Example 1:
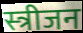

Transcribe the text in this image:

स्त्रीजन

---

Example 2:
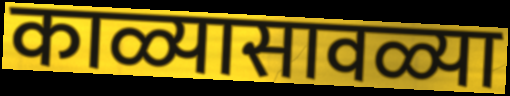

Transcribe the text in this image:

काळ्यासावळ्या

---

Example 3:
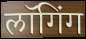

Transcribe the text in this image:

लॉगिंग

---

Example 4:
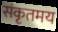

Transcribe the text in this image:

संकृतमय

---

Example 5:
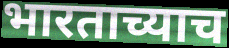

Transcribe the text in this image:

भारताच्याच